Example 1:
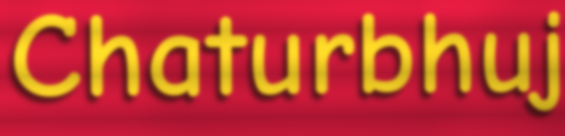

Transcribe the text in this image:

Chaturbhuj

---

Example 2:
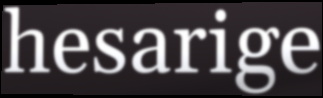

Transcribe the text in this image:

hesarige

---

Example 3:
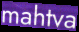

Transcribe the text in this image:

mahtva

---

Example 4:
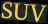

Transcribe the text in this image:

SUV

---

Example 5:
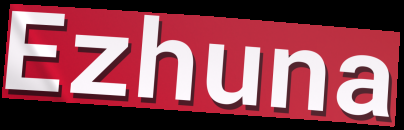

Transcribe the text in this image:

Ezhuna